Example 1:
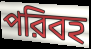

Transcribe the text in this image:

পরিবহ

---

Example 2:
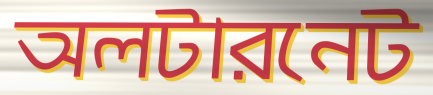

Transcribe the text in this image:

অলটারনেট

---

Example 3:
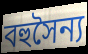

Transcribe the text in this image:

বহুসৈন্য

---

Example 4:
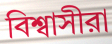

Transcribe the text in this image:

বিশ্বাসীরা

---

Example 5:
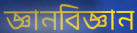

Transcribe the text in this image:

জ্ঞানবিজ্ঞান